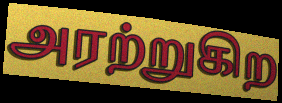
அரற்றுகிற